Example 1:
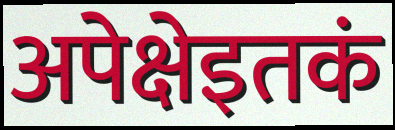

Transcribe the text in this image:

अपेक्षेइतकं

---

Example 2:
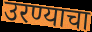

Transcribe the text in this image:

उरण्याचा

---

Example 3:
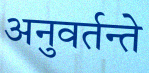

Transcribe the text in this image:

अनुवर्तन्ते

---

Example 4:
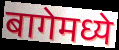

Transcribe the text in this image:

बागेमध्ये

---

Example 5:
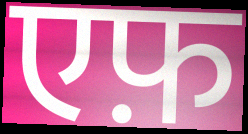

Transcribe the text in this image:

एफ़